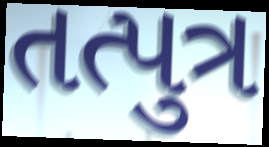
તત્પુત્ર